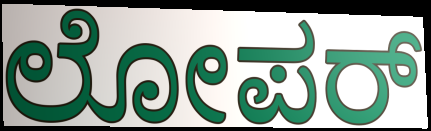
ಲೋಪರ್